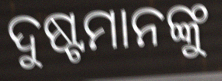
ଦୁଷ୍ଟମାନଙ୍କୁ